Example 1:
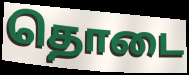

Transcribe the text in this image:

தொடை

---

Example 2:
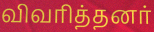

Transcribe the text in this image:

விவரித்தனர்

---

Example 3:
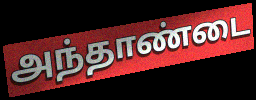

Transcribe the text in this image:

அந்தாண்டை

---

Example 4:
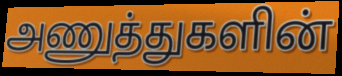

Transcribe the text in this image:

அணுத்துகளின்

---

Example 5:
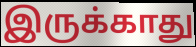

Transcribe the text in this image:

இருக்காது